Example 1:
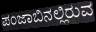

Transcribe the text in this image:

ಪಂಜಾಬಿನಲ್ಲಿರುವ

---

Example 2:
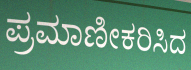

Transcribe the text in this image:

ಪ್ರಮಾಣೀಕರಿಸಿದ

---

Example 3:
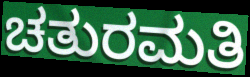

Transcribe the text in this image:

ಚತುರಮತಿ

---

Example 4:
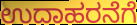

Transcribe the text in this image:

ಉದಾಹರನೆಗೆ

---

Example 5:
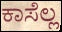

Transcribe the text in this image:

ಕಾಸೆಲ್ಲ